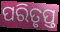
ପରିତୃପ୍ତ